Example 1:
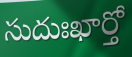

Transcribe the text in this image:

సుదుఃఖార్తో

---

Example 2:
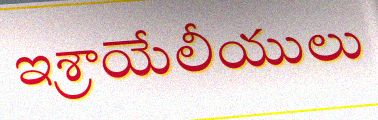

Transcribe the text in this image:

ఇశ్రాయేలీయులు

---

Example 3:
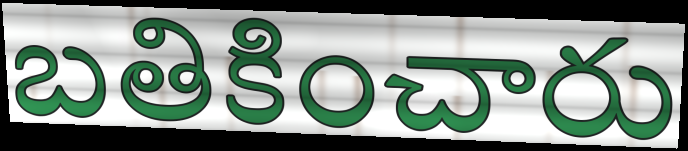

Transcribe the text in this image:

బతికించారు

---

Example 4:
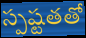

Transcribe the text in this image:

స్పష్టతతో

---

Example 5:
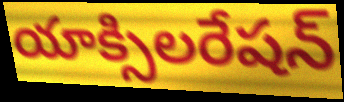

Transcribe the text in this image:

యాక్సిలరేషన్